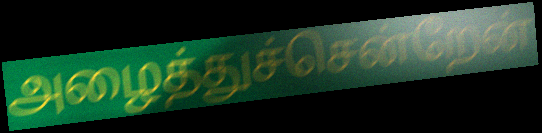
அழைத்துச்சென்றேன்